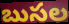
బుసల